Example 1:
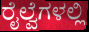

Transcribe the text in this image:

ರೈಲ್ವೆಗಳಲ್ಲಿ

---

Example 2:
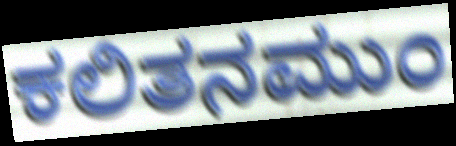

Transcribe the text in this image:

ಕಲಿತನಮುಂ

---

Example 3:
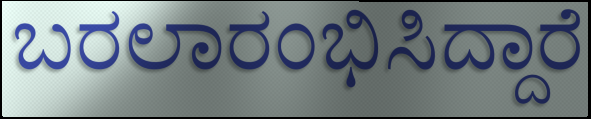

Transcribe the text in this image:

ಬರಲಾರಂಭಿಸಿದ್ದಾರೆ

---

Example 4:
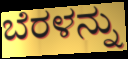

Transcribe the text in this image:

ಬೆರಳನ್ನು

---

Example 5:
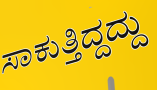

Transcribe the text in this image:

ಸಾಕುತ್ತಿದ್ದದ್ದು